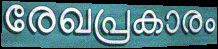
രേഖപ്രകാരം